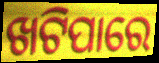
ଖଟିପାରେ